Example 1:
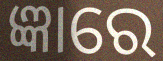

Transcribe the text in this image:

ଜ୍ଞାରେ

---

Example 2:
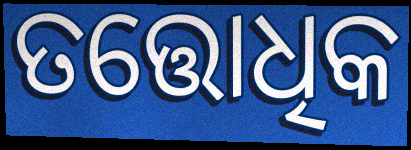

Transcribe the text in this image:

ତତ୍ତୋଧିକ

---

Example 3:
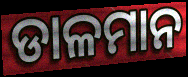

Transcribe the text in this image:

ଡାଳମାନ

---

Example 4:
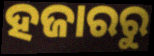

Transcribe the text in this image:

ହଜାରରୁ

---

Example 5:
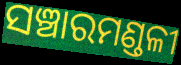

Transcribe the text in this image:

ସଞ୍ଚାରମଣ୍ଡଳୀ